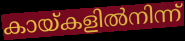
കായ്കളിൽനിന്ന്